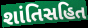
શાંતિસહિત